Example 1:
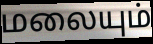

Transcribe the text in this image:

மலையும்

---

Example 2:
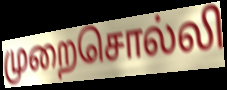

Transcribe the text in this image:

முறைசொல்லி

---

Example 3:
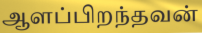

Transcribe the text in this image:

ஆளப்பிறந்தவன்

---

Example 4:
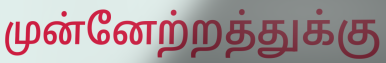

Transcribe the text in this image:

முன்னேற்றத்துக்கு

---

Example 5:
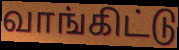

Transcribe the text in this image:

வாங்கிட்டு